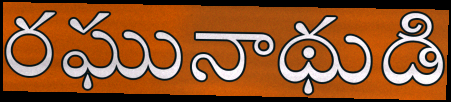
రఘునాథుడి